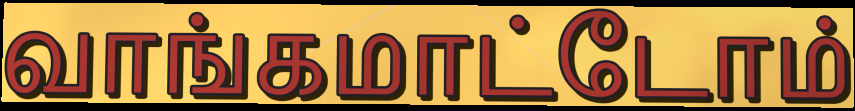
வாங்கமாட்டோம்